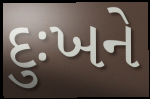
દુઃખને